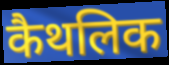
कैथलिक